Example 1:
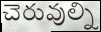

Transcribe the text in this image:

చెరువుల్ని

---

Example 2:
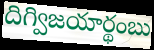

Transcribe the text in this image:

దిగ్విజయార్థంబు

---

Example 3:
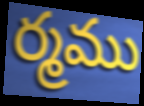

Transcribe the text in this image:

ర్మము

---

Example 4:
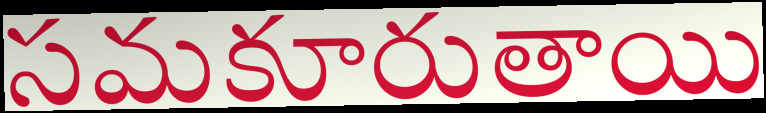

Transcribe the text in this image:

సమకూరుతాయి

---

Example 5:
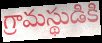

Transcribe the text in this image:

గ్రామస్థుడికి